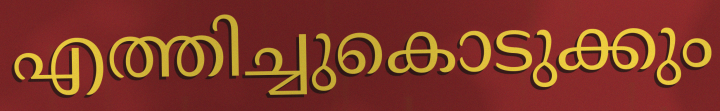
എത്തിച്ചുകൊടുക്കും